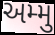
અમ્મુ